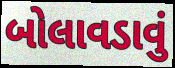
બોલાવડાવું